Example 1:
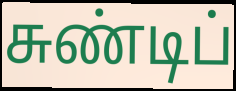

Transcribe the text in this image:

சுண்டிப்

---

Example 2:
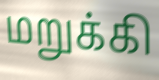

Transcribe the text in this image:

மறுக்கி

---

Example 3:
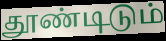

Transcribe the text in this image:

தூண்டிடும்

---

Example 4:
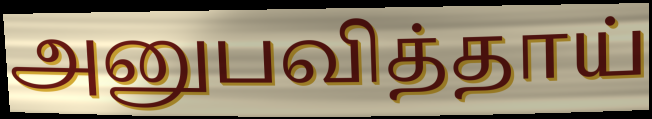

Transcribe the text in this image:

அனுபவித்தாய்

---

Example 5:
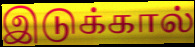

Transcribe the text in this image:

இடுக்கால்